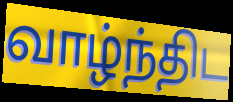
வாழ்ந்திட